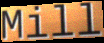
Mill